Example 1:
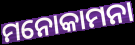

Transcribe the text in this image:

ମନୋକାମନା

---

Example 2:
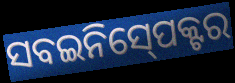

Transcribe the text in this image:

ସବଇନିସ୍‍ପେକ୍ଟର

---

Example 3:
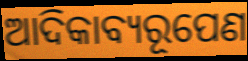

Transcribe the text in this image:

ଆଦିକାବ୍ୟରୂପେଣ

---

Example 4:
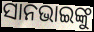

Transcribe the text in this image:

ସାନଭାଇଙ୍କୁ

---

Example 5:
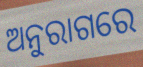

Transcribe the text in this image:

ଅନୁରାଗରେ